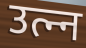
उत्न्न